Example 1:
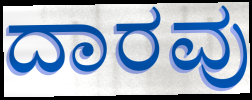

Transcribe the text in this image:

ದಾರವು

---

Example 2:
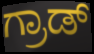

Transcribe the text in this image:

ಗ್ರಾಡ್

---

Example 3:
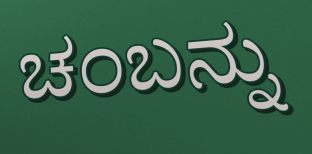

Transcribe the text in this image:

ಚಂಬನ್ನು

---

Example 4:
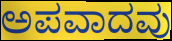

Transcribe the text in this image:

ಅಪವಾದವು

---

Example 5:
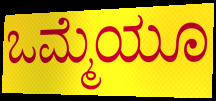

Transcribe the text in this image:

ಒಮ್ಮೆಯೂ